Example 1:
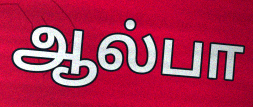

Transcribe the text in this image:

ஆல்பா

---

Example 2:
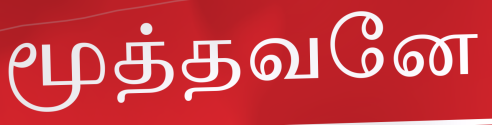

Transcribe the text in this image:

மூத்தவனே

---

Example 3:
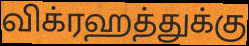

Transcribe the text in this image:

விக்ரஹத்துக்கு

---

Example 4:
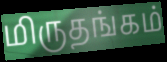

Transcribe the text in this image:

மிருதங்கம்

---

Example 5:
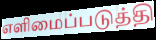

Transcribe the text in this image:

எளிமைப்படுத்தி